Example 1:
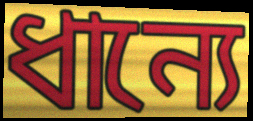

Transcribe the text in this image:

ধান্যে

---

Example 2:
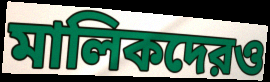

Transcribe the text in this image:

মালিকদেরও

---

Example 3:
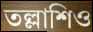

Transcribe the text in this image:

তল্লাশিও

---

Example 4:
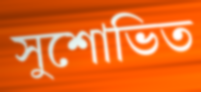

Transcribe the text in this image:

সুশোভিত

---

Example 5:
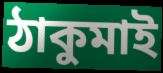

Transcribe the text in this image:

ঠাকুমাই